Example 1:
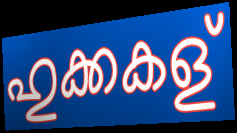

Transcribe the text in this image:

ഹുക്കകള്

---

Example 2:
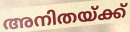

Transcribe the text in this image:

അനിതയ്ക്ക്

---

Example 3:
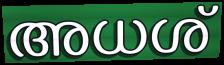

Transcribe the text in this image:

അധശ്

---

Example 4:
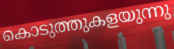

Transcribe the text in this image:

കൊടുത്തുകളയുന്നു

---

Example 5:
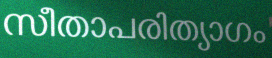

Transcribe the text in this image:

സീതാപരിത്യാഗം